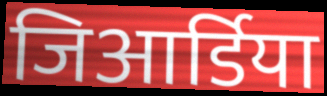
जिआर्डिया